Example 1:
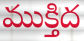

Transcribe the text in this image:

ముక్తిద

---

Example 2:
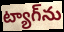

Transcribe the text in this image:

ట్యాగ్‌ను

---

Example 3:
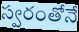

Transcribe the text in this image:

స్వరంతోనే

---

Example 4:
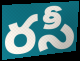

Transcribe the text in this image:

రసీ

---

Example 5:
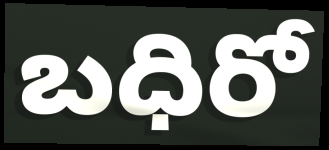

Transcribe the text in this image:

బధిరో